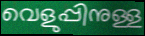
വെളുപ്പിനുള്ള